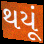
થયૂં